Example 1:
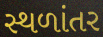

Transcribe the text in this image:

સ્થળાંતર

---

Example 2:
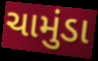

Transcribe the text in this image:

ચામુંડા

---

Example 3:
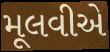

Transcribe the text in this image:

મૂલવીએ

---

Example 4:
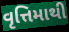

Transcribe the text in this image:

વૃત્તિમાથી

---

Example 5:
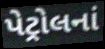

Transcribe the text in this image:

પેટ્રોલનાં